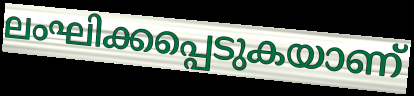
ലംഘിക്കപ്പെടുകയാണ്